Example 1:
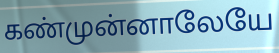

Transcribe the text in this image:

கண்முன்னாலேயே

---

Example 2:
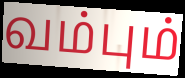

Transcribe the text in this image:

வம்பும்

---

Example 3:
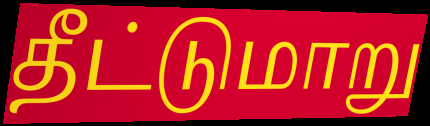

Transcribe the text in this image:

தீட்டுமாறு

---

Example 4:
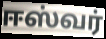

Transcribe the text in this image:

ஈஸ்வர்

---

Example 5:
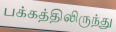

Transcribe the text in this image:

பக்கத்திலிருந்து